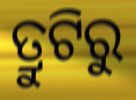
ତ୍ରୁଟିରୁ